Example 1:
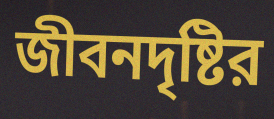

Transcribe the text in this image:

জীবনদৃষ্টির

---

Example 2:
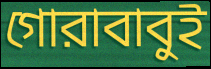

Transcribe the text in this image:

গোরাবাবুই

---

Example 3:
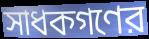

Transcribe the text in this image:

সাধকগণের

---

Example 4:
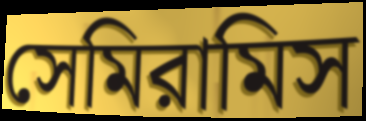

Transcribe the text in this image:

সেমিরামিস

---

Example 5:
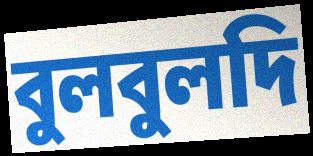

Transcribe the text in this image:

বুলবুলদি